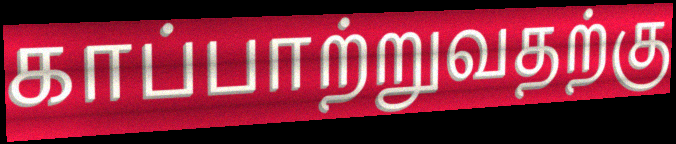
காப்பாற்றுவதற்கு